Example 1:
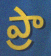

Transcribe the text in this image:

ప్రా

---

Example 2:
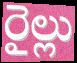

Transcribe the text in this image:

రైల్లు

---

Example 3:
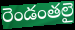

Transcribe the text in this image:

రెండంతలై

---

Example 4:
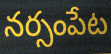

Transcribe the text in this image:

నర్సంపేట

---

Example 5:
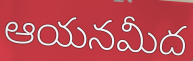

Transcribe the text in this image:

ఆయనమీద